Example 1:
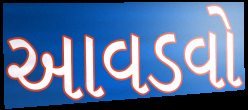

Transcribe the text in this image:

આવડવો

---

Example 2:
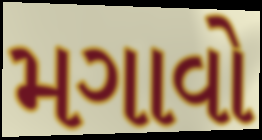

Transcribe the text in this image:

મગાવો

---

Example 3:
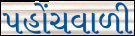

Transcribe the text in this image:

પહોંચવાળી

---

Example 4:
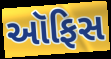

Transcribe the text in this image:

આૅફિસ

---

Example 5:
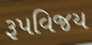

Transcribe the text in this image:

રૂપવિજય